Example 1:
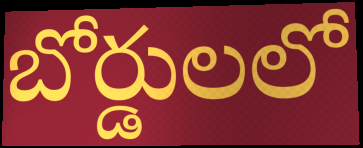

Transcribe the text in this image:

బోర్డులలో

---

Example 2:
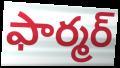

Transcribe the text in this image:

ఫార్మర్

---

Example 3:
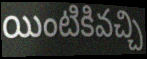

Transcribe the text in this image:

యింటికివచ్చి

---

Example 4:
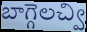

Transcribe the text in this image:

బాగ్గెలచ్వి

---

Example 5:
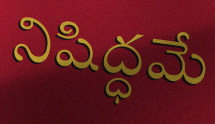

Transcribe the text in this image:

నిషిద్ధమే